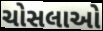
ચોસલાઓ